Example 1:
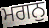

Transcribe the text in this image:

ਮਗਨੁ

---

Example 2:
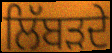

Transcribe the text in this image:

ਲਿੱਬੜਦੇ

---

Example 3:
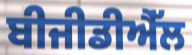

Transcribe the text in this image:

ਬੀਜੀਡੀਐੱਲ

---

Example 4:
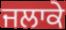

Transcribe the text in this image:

ਜਲਾਕੇ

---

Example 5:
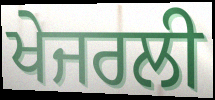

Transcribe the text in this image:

ਖੇਜਰਲੀ